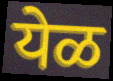
येळ